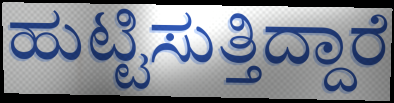
ಹುಟ್ಟಿಸುತ್ತಿದ್ದಾರೆ